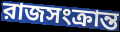
রাজসংক্রান্ত